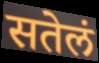
सतेलं